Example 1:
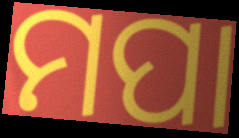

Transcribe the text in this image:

ମପା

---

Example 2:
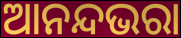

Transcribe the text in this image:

ଆନନ୍ଦଭରା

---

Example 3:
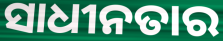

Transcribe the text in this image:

ସାଧୀନତାର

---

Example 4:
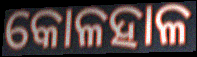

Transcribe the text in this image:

କୋଳହାଳ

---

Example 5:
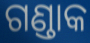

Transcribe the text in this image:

ଗଣ୍ଡାକ